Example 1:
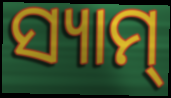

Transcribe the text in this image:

ସ୍ୟାମ୍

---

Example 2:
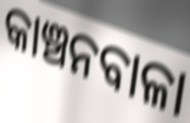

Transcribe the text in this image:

କାଞ୍ଚନବାଳା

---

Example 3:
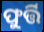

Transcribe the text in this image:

ଫୁର୍ତ୍ତି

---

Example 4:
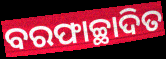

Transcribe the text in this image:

ବରଫାଚ୍ଛାଦିତ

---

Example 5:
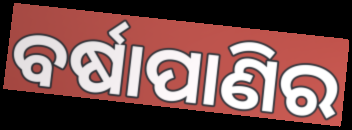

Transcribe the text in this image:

ବର୍ଷାପାଣିର